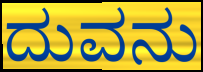
ದುವನು